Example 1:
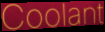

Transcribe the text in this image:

Coolant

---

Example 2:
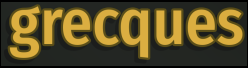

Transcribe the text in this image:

grecques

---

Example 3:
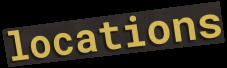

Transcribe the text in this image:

locations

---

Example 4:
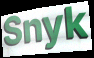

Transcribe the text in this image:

Snyk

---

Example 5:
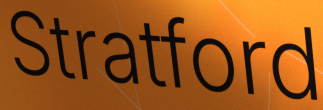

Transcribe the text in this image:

Stratford